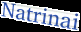
Natrinai